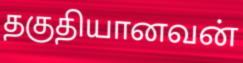
தகுதியானவன்